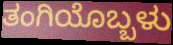
ತಂಗಿಯೊಬ್ಬಳು